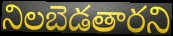
నిలబెడతారని